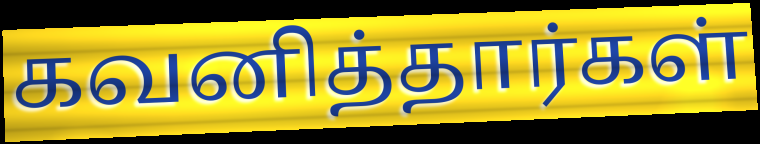
கவனித்தார்கள்